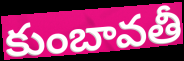
కుంబావతీ